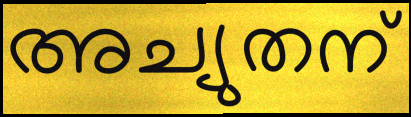
അച്യുതന്